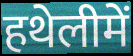
हथेलीमें